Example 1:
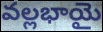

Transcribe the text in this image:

వల్లభాయై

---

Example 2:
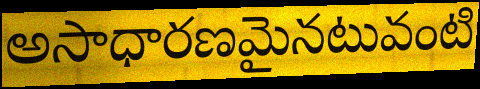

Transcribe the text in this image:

అసాధారణమైనటువంటి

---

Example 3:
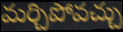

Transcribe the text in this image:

మర్చిపోవచ్చు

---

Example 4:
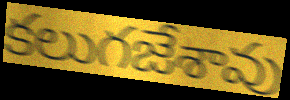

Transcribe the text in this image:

కలుగజేశావు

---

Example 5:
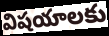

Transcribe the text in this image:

విషయాలకు